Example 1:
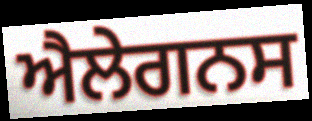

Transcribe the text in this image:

ਐਲੇਗਨਸ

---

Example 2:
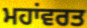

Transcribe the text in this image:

ਮਹਾਂਵਰਤ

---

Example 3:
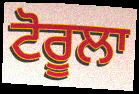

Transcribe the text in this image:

ਟੋਰੂਲਾ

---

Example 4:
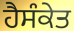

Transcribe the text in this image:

ਹੈਸੰਕੇਤ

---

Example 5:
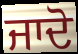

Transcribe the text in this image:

ਜਾਦੋ